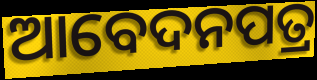
ଆବେଦନପତ୍ର